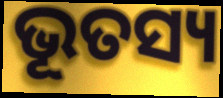
ଭୂତସ୍ୟ